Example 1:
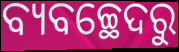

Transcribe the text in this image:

ବ୍ୟବଚ୍ଛେଦରୁ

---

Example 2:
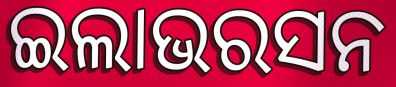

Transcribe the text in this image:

ଇଲାଭରସନ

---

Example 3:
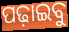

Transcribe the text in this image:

ପଢ଼ାଇବୁ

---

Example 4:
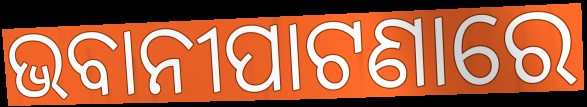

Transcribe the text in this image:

ଭବାନୀପାଟଣାରେ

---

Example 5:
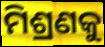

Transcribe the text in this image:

ମିଶ୍ରଣକୁ